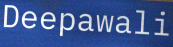
Deepawali